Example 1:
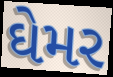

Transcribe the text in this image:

ઘેમર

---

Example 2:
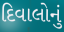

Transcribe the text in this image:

દિવાલોનું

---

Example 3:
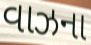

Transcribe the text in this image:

વાઝના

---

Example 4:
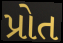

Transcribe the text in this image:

પ્રોત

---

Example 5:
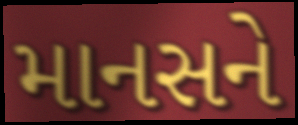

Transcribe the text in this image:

માનસને